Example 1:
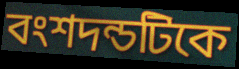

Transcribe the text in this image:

বংশদন্ডটিকে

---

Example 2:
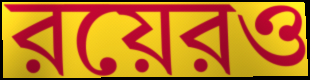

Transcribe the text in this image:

রয়েরও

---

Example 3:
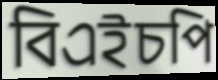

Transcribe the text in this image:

বিএইচপি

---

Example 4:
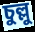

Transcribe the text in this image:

চুল্লু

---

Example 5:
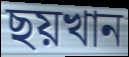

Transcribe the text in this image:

ছয়খান